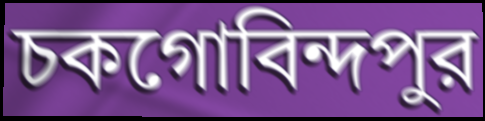
চকগোবিন্দপুর